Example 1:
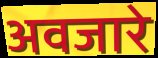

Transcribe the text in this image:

अवजारे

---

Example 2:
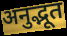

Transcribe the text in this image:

अनुद्भूत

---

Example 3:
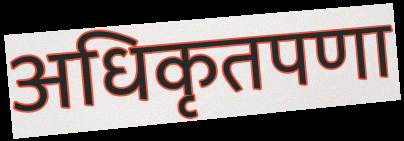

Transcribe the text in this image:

अधिकृतपणा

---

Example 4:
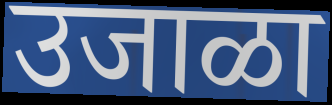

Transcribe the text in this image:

उजाळा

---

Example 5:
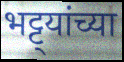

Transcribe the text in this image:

भट्ट्यांच्या